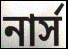
নার্স